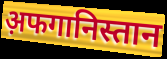
अ़फगानिस्तान